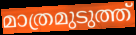
മാത്രമുടുത്ത്